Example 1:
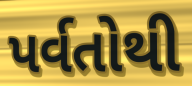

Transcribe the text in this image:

પર્વતોથી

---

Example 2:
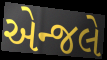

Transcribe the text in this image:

એન્જલે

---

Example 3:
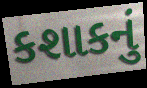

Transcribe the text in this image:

કશાકનું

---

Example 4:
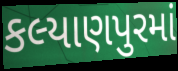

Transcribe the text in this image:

કલ્યાણપુરમાં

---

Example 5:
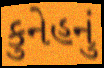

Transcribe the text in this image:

કુનેહનું